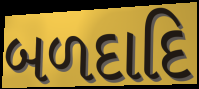
બળદાદિ